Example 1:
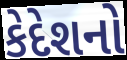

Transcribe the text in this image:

કેદેશનો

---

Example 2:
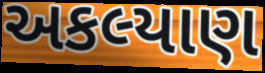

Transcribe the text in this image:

અકલ્યાણ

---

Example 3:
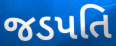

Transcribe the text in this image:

જડપતિ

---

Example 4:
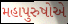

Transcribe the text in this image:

મહાપુરુષોએ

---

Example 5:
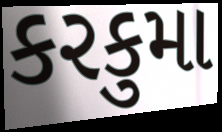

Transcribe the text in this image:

કરકુમા